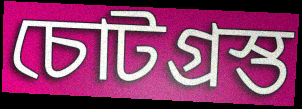
চোটগ্রস্ত